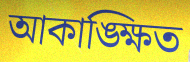
আকাঙ্ক্ষিত